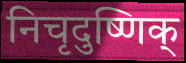
निचृदुष्णिक्